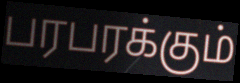
பரபரக்கும்